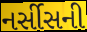
નર્સીસની